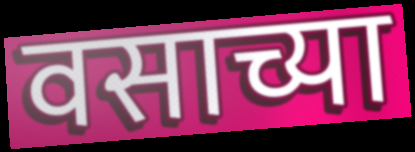
वसाच्या